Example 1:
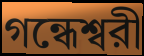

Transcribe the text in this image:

গন্ধেশ্বরী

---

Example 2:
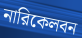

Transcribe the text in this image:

নারিকেলবন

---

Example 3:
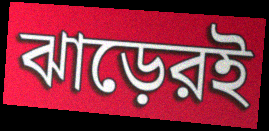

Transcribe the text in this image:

ঝাড়েরই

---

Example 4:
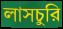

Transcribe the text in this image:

লাসচুরি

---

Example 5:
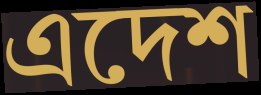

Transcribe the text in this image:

এদেশ